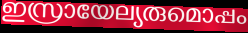
ഇസ്രായേല്യരുമൊപ്പം